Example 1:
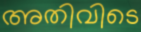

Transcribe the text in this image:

അതിവിടെ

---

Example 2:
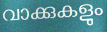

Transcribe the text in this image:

വാക്കുകളും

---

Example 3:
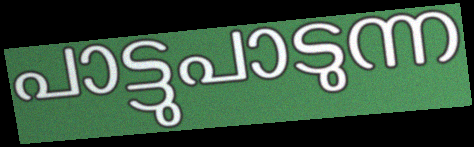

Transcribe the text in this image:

പാട്ടുപാടുന്ന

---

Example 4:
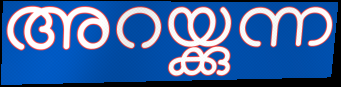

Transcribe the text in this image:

അറയ്ക്കുന്ന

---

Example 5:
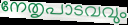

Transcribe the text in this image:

നേതൃപാടവവും